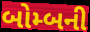
બોમ્બની